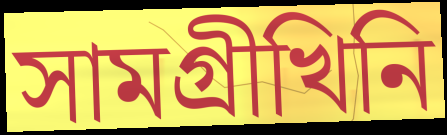
সামগ্ৰীখিনি